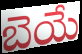
బెయే